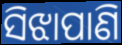
ସିଝାପାଣି